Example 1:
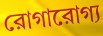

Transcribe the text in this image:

রোগারোগ্য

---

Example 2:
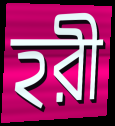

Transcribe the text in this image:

হরী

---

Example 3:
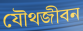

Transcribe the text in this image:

যৌথজীবন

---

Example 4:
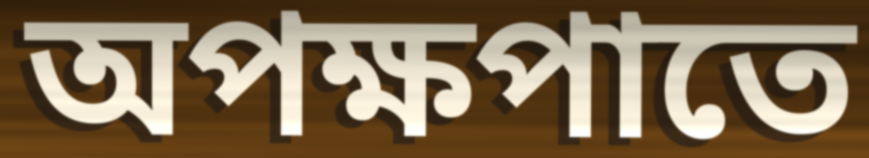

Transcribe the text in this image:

অপক্ষপাতে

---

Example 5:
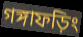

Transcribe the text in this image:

গঙ্গাফড়িং